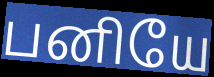
பனியே